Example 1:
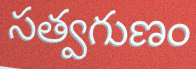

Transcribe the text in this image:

సత్వగుణం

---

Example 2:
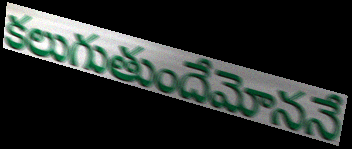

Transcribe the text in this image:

కలుగుతుందేమోననే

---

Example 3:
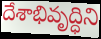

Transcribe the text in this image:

దేశాభివృద్ధిని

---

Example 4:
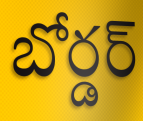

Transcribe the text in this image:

బోర్డర్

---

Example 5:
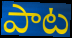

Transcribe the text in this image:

పాట